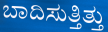
ಬಾದಿಸುತ್ತಿತ್ತು